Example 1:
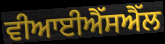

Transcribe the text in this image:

ਵੀਆਈਐੱਸਐੱਲ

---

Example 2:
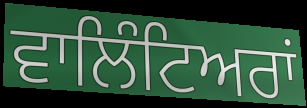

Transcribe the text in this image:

ਵਾਲਿੰਟਿਅਰਾਂ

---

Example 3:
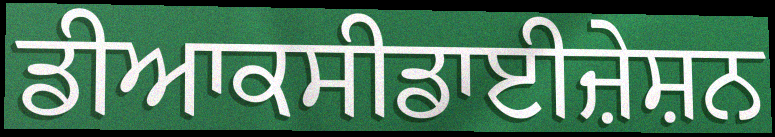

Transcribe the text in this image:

ਡੀਆਕਸੀਡਾਈਜ਼ੇਸ਼ਨ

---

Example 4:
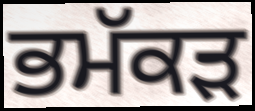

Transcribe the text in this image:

ਭਮੱਕੜ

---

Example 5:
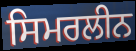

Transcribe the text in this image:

ਸਿਮਰਲੀਨ